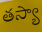
తస్యా